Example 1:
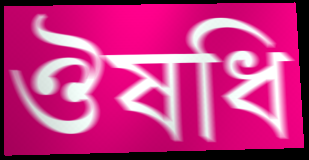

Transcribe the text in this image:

ঔষধি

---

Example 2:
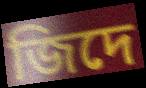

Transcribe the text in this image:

জিদে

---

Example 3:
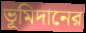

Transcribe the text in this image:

ভূমিদানের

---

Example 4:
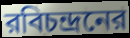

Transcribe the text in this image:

রবিচন্দ্রনের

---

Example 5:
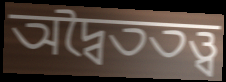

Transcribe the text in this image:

অদ্বৈততত্ত্ব